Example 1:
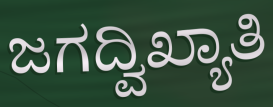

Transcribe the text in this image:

ಜಗದ್ವಿಖ್ಯಾತಿ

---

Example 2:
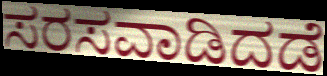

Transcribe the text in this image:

ಸರಸವಾಡಿದಡೆ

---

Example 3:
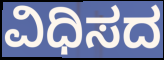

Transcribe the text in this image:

ವಿಧಿಸದ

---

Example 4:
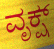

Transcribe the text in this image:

ವೃಕ್ಷ್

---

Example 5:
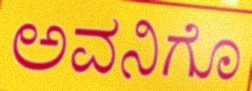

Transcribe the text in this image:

ಅವನಿಗೊ